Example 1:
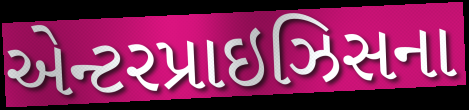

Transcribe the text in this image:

એન્ટરપ્રાઇઝિસના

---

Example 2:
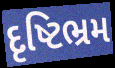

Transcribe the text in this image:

દૃષ્ટિભ્રમ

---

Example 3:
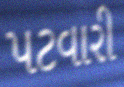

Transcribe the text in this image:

પટવારી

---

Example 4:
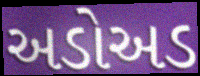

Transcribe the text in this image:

અડોઅડ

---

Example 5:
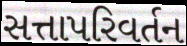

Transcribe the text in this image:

સત્તાપરિવર્તન